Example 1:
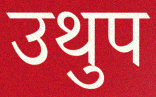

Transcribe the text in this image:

उथुप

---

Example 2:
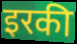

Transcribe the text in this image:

इरकी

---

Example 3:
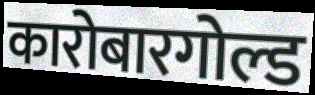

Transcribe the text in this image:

कारोबारगोल्ड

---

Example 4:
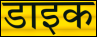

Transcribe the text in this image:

डाइक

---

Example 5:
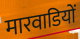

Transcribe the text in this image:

मारवाडियों